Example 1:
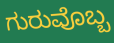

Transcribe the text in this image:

ಗುರುವೊಬ್ಬ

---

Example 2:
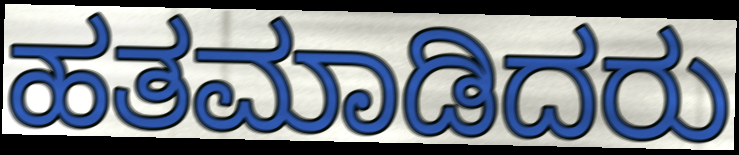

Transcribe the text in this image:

ಹತಮಾಡಿದರು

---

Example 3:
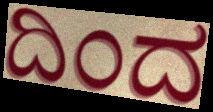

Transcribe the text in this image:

ದಿಂದ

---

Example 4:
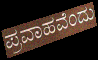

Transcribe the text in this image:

ಪ್ರವಾಹವೆಂದು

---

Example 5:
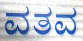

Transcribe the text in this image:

ವತವ